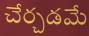
చేర్చడమే